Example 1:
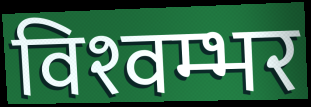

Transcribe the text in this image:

विश्वम्भर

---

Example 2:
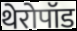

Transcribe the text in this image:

थेरोपॉड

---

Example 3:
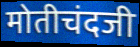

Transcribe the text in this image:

मोतीचंदजी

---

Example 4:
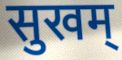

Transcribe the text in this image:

सुखम्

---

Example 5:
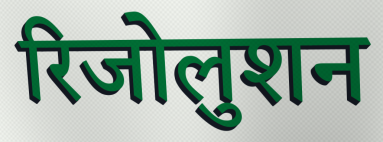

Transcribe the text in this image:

रिजोलुशन